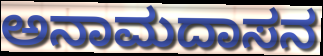
ಅನಾಮದಾಸನ